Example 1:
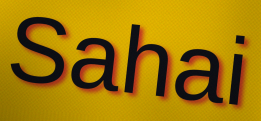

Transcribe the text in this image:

Sahai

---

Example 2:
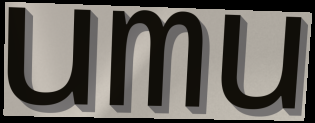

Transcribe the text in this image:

umu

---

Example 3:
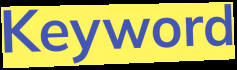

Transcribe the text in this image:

Keyword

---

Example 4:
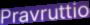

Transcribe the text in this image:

Pravruttio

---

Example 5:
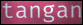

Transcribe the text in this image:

tangan